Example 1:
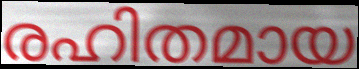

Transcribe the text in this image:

രഹിതമായ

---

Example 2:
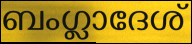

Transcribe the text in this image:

ബംഗ്ലാദേശ്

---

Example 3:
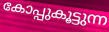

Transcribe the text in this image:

കോപ്പുകൂട്ടുന്ന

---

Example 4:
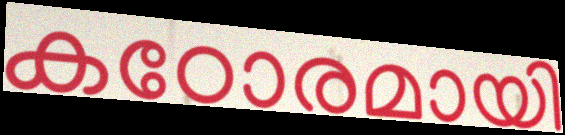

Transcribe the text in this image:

കഠോരമായി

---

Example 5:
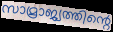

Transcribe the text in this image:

സാമ്രാജ്യത്തിന്റെ